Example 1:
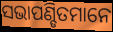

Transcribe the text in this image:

ସଭାପଣ୍ଡିତମାନେ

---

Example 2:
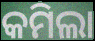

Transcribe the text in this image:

କମିଲା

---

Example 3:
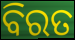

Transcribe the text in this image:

ବିରତ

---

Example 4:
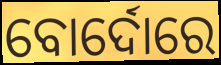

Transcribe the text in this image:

ବୋର୍ଦୋରେ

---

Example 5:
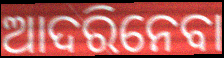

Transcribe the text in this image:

ଆଦରିନେବା